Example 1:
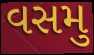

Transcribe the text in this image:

વસમુ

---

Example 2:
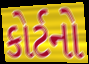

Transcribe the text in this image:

કોર્ટનો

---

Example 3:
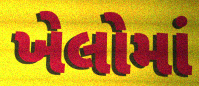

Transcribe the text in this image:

ખેલોમાં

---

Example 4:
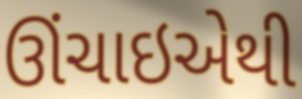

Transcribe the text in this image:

ઊંચાઇએથી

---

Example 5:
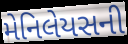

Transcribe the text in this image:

મેનિલેયસની